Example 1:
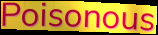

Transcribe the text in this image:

Poisonous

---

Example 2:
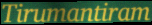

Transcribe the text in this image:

Tirumantiram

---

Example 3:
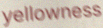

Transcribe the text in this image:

yellowness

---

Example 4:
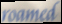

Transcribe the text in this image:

roamed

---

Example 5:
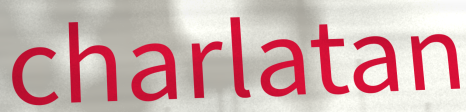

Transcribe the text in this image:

charlatan